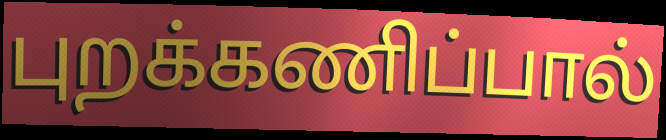
புறக்கணிப்பால்